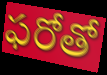
ఫరోతో